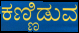
ಕಣ್ಣಿಡುವ